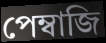
পেম্বাজি